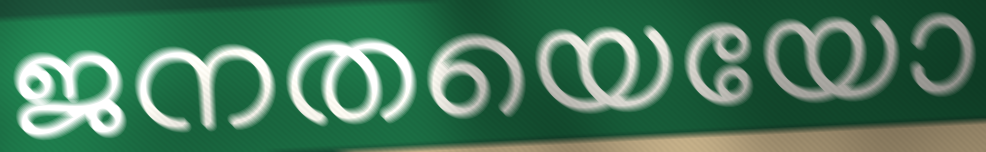
ജനതയെയോ